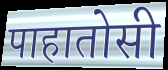
पाहातोसी